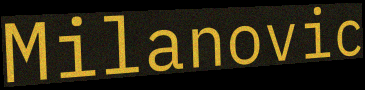
Milanovic